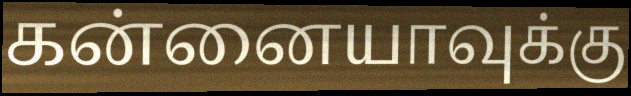
கன்னையாவுக்கு